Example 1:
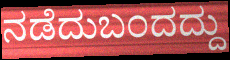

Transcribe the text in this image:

ನಡೆದುಬಂದದ್ದು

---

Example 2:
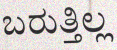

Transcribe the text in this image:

ಬರುತ್ತಿಲ್ಲ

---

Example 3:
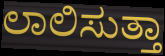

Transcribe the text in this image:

ಲಾಲಿಸುತ್ತಾ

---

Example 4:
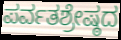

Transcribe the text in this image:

ಪರ್ವತಶ್ರೇಷ್ಠದ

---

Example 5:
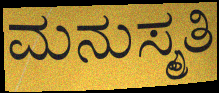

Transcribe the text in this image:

ಮನುಸ್ಮೃತಿ